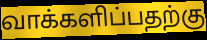
வாக்களிப்பதற்கு